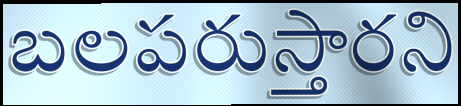
బలపరుస్తారని